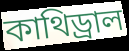
কাথিড্রাল